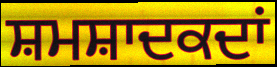
ਸ਼ਮਸ਼ਾਦਕਦਾਂ